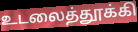
உடலைத்தூக்கி